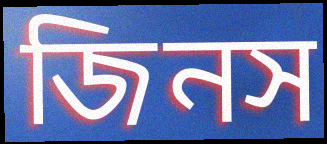
জিনস